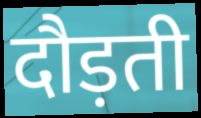
दौड़ती